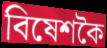
বিষেশকৈ